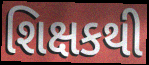
શિક્ષકથી